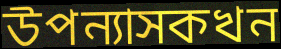
উপন্যাসকখন